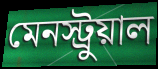
মেনস্ট্রুয়াল